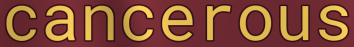
cancerous